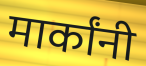
मार्कांनी